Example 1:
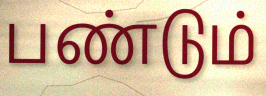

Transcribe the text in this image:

பண்டும்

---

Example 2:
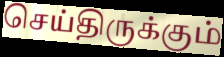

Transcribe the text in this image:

செய்திருக்கும்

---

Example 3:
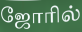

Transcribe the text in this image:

ஜோரில்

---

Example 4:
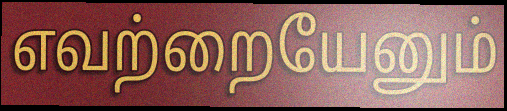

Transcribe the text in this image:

எவற்றையேனும்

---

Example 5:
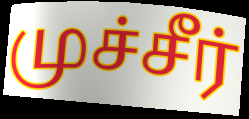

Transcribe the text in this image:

முச்சீர்